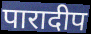
पारादीप